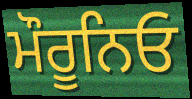
ਮੌਰੂਨਿਓ